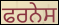
ਫਰਨੇਸ